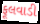
ફૂલવાડી